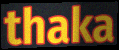
thaka